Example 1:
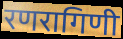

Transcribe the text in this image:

रणरागिणी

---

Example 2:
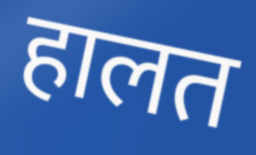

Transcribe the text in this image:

हालत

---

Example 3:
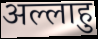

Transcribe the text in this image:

अल्लाहु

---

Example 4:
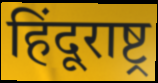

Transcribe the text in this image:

हिंदूराष्ट्र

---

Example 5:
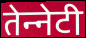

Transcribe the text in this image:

तेन्नेटी